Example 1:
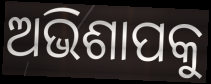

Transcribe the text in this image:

ଅଭିଶାପକୁ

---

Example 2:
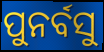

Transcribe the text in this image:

ପୁନର୍ବସୁ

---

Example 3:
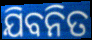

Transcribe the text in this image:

ଯିବନିତ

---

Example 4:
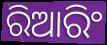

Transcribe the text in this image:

ରିଆରିଂ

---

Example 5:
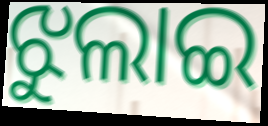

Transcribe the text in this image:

ଝୁଲାଇ